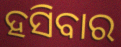
ହସିବାର